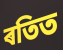
ৰতিত